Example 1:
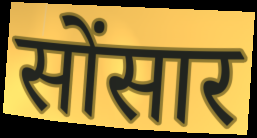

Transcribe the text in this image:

सोंसार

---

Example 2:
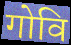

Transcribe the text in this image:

गोवि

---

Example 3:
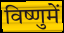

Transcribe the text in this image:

विष्णुमें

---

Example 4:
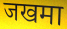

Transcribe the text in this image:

जखमा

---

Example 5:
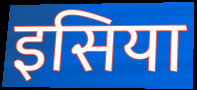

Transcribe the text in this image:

इसिया